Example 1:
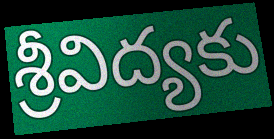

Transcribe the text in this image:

శ్రీవిద్యకు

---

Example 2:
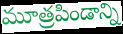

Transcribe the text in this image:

మూత్రపిండాన్ని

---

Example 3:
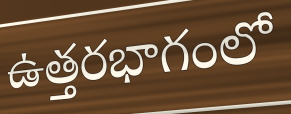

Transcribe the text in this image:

ఉత్తరభాగంలో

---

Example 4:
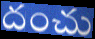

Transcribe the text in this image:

దంచు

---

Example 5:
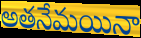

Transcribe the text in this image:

అతనేమయినా